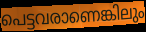
പെട്ടവരാണെങ്കിലും